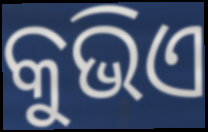
କୁଭିଏ